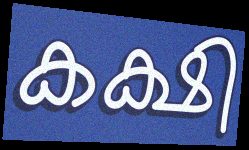
കക്ഷി